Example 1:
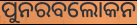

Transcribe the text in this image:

ପୁନରବଲୋକନ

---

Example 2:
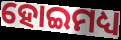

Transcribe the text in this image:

ହୋଇମଧ୍ୟ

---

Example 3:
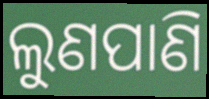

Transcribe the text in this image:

ଲୁଣପାଣି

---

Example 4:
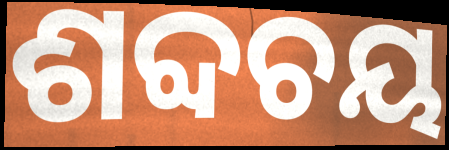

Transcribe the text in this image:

ଶବ୍ଦଚୟ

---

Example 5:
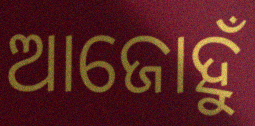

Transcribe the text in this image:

ଆଜୋହୁଁ